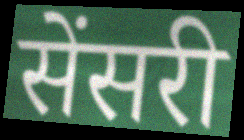
सेंसरी